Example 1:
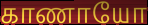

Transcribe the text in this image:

காணாயோ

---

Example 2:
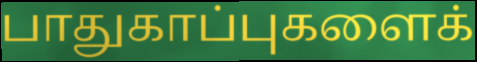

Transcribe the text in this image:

பாதுகாப்புகளைக்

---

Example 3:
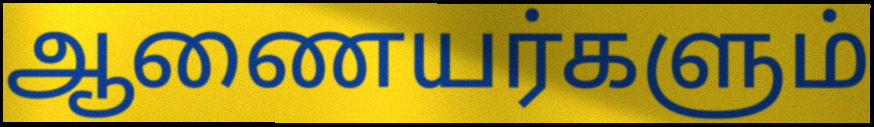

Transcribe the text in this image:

ஆணையர்களும்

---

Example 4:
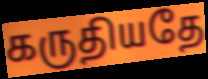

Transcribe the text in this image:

கருதியதே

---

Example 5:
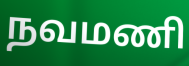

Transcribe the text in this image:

நவமணி